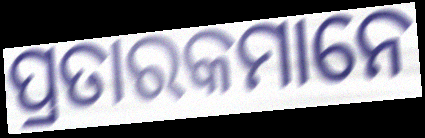
ପ୍ରତାରକମାନେ